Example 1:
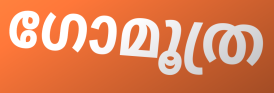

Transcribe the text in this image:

ഗോമൂത്ര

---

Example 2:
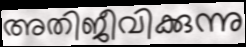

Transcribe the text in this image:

അതിജീവിക്കുന്നു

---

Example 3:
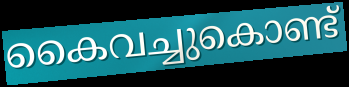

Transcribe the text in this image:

കൈവച്ചുകൊണ്ട്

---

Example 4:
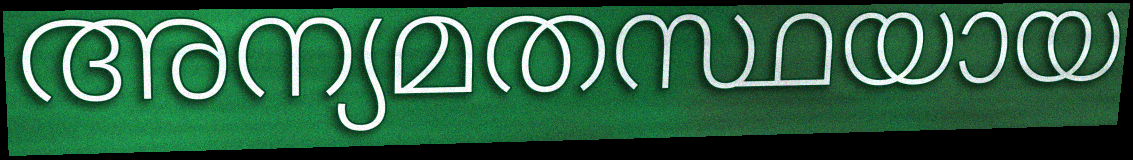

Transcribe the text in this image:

അന്യമതസ്ഥയായ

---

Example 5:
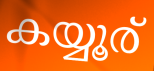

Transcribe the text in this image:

കയ്യൂര്